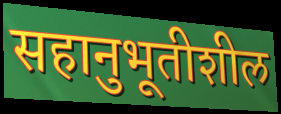
सहानुभूतीशील